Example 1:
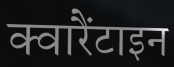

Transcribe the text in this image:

क्वारैंटाइन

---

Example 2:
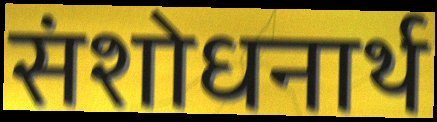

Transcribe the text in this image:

संशोधनार्थ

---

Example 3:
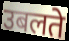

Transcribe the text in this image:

उबलते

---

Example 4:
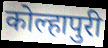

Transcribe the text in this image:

कोल्हापुरी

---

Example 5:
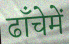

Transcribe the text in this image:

ढाँचेमें